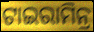
ଟାଇରାମିନ୍ର